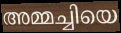
അമ്മച്ചിയെ